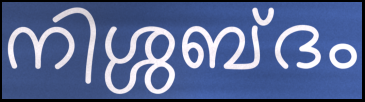
നിശ്ശബ്ദം